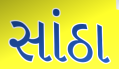
સાંઠા